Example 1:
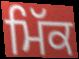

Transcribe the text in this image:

ਮਿੱਕ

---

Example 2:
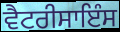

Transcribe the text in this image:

ਵੈਟਰੀਸਾਇੰਸ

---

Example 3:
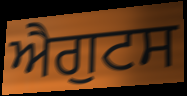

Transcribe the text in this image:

ਐਗੁਟਸ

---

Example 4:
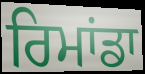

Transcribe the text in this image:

ਰਿਮਾਂਡਾ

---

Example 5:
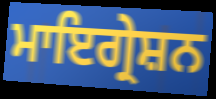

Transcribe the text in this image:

ਮਾਇਗ੍ਰੇਸ਼ਨ